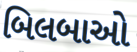
બિલબાઓ